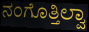
ನಂಗೊತ್ತಿಲ್ವಾ